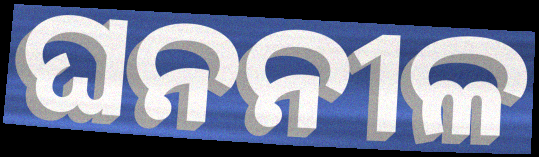
ଘନନୀଳ